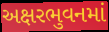
અક્ષરભુવનમાં